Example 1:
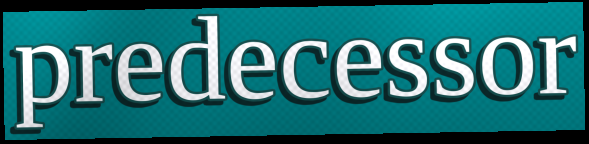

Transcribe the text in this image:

predecessor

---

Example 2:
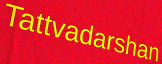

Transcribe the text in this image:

Tattvadarshan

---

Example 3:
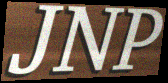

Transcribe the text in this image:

JNP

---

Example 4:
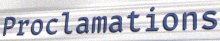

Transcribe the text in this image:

Proclamations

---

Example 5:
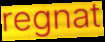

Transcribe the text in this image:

regnat